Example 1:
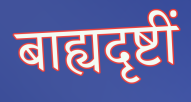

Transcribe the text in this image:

बाह्यदृष्टीं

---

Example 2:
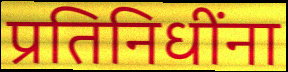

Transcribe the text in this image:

प्रतिनिधींना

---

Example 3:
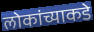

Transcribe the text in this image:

लोकांच्याकडे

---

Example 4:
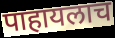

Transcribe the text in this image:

पाहायलाच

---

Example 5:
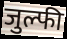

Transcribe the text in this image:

जुल्फी